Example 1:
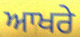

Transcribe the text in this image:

ਆਖਰੇ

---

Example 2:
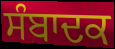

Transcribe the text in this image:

ਸੰਬਾਦਕ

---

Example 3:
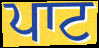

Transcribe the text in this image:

ਪਾਟ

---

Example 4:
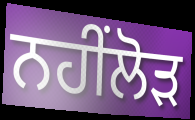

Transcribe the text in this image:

ਨਹੀਂਲੋੜ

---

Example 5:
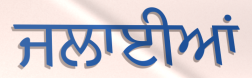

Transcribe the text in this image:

ਜਲਾਈਆਂ